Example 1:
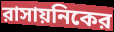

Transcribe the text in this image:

রাসায়নিকের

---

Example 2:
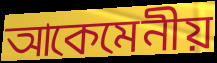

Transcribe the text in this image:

আকেমেনীয়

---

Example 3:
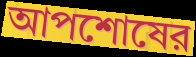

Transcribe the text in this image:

আপশোষের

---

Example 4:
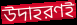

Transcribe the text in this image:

উদাহরণই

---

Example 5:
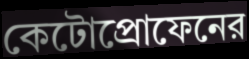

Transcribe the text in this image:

কেটোপ্রোফেনের